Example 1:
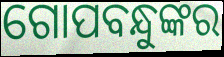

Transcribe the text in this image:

ଗୋପବନ୍ଧୁଙ୍କର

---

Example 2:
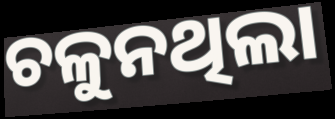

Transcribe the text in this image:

ଚଳୁନଥିଲା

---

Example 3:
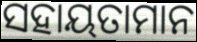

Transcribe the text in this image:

ସହାୟତାମାନ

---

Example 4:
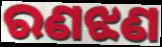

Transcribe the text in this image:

ରଣଝଣ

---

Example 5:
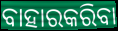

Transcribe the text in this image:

ବାହାରକରିବା